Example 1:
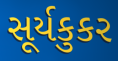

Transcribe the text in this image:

સૂર્યકુકર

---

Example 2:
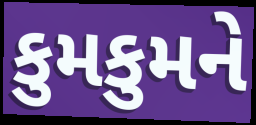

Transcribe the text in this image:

કુમકુમને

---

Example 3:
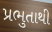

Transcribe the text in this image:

પ્રભુતાથી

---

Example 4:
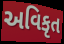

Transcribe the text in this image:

અવિકૃત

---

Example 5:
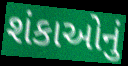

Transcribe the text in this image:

શંકાઓનું